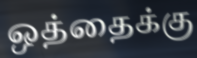
ஒத்தைக்கு